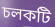
চলকটি